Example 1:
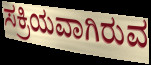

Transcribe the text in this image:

ಸಕ್ರಿಯವಾಗಿರುವ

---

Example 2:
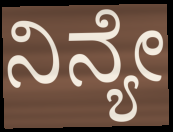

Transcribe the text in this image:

ನಿನ್ಯೇ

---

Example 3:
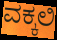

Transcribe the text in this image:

ವಕ್ಕಲಿ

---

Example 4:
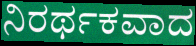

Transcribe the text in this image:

ನಿರರ್ಥಕವಾದ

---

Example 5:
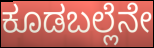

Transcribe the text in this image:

ಕೂಡಬಲ್ಲೆನೇ